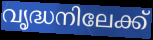
വൃദ്ധനിലേക്ക്